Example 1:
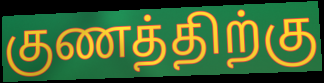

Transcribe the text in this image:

குணத்திற்கு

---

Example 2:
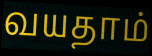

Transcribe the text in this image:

வயதாம்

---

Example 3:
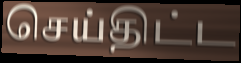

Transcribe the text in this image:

செய்திட்ட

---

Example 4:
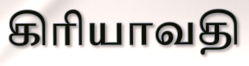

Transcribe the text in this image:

கிரியாவதி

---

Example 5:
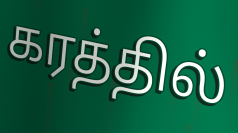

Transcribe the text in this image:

கரத்தில்